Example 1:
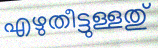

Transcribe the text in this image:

എഴുതീട്ടുള്ളതു്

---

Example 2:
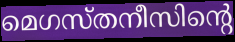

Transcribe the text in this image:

മെഗസ്തനീസിന്റെ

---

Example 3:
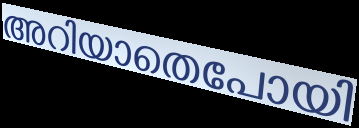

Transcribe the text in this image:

അറിയാതെപോയി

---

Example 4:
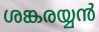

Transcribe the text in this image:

ശങ്കരയ്യൻ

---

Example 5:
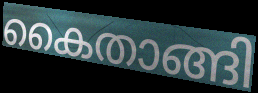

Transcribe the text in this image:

കൈതാങ്ങി